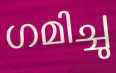
ഗമിച്ചു